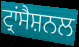
ਟ੍ਰਾਂਸੈਸ਼ਨਲ